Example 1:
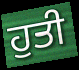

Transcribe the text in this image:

ਹੁਤੀ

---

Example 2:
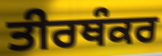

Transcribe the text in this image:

ਤੀਰਥੰਕਰ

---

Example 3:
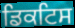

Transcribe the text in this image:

ਡਿਕਟਿਸ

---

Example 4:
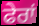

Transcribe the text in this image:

ਫੇਰਾਂ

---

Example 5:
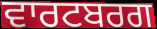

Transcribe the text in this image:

ਵਾਰਟਬਰਗ